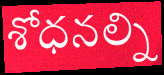
శోధనల్ని